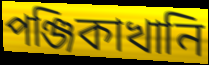
পঞ্জিকাখানি